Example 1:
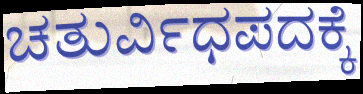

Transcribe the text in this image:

ಚತುರ್ವಿಧಪದಕ್ಕೆ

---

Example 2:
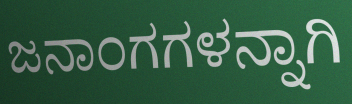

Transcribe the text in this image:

ಜನಾಂಗಗಳನ್ನಾಗಿ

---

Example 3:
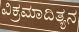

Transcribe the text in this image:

ವಿಕ್ರಮಾದಿತ್ಯನ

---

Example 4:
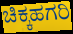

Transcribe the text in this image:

ಚಿಕ್ಕಹಗರಿ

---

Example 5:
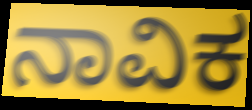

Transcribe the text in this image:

ನಾವಿಕ